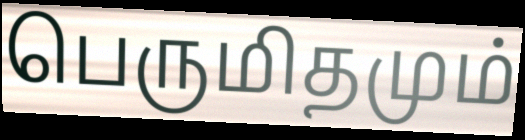
பெருமிதமும்